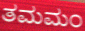
ತಮಮಂ